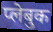
प्लेबुक